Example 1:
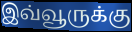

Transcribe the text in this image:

இவ்வூருக்கு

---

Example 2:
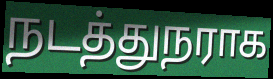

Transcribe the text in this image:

நடத்துநராக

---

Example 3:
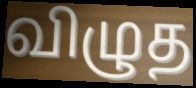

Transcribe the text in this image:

விழுத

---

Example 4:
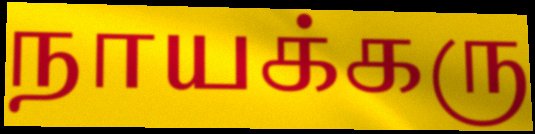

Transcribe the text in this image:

நாயக்கரு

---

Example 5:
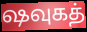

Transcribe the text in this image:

ஷவுகத்